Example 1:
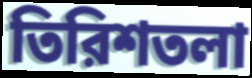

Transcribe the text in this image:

তিরিশতলা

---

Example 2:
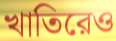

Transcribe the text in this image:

খাতিরেও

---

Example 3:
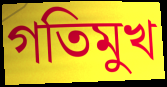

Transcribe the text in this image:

গতিমুখ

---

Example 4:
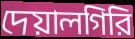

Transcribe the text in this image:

দেয়ালগিরি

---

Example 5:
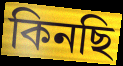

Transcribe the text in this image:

কিনছি